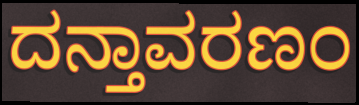
ದನ್ತಾವರಣಂ